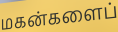
மகன்களைப்